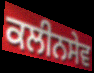
ਕਲੀਨਸੇਵ